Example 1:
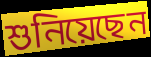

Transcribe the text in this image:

শুনিয়েছেন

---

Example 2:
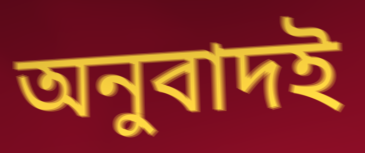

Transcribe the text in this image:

অনুবাদই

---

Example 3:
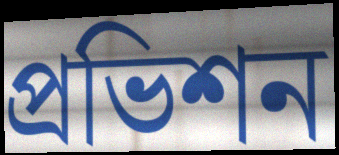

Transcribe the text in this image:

প্রভিশন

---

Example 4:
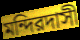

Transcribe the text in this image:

মন্দিরদাসী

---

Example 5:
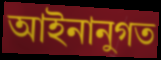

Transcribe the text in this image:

আইনানুগত